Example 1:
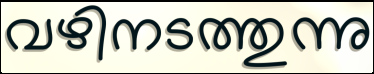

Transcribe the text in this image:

വഴിനടത്തുന്നു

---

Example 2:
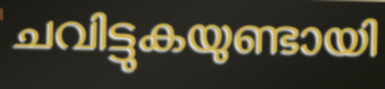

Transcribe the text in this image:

ചവിട്ടുകയുണ്ടായി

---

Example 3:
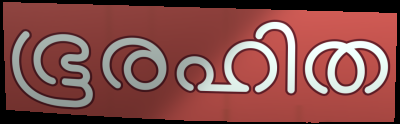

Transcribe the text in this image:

ഭൂരഹിത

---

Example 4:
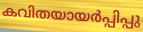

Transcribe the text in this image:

കവിതയായർപ്പിപ്പു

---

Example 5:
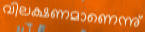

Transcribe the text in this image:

വിലക്ഷണമാണെന്നു്